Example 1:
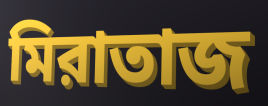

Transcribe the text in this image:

মিরাতাজ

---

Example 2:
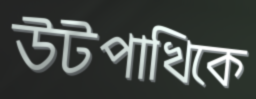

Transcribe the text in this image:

উটপাখিকে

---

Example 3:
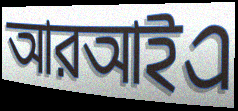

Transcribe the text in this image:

আরআইএ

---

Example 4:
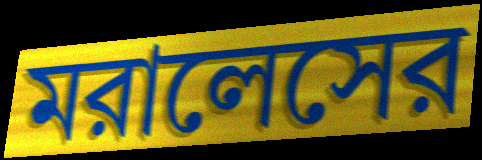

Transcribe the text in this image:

মরালেসের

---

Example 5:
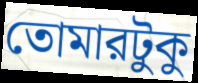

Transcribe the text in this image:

তোমারটুকু